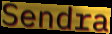
Sendra